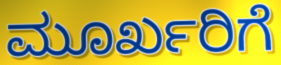
ಮೂರ್ಖರಿಗೆ